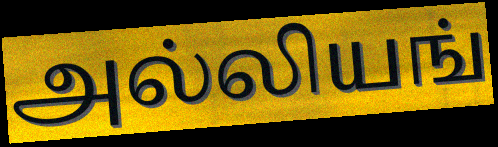
அல்லியங்